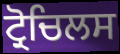
ਟ੍ਰੋਚਿਲਸ